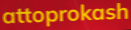
attoprokash